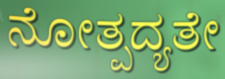
ನೋತ್ಪದ್ಯತೇ